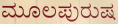
ಮೂಲಪುರುಷ